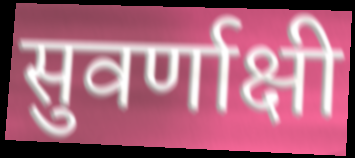
सुवर्णाक्षी